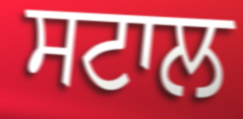
ਸਟਾਲ